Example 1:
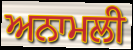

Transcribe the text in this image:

ਅਨਾਮਲੀ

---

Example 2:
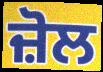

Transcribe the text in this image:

ਜ਼ੋਲ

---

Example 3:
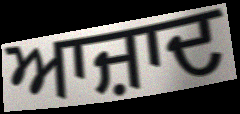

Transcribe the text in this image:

ਆਜ਼ਾਦ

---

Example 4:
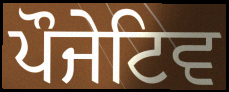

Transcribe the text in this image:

ਪੌਜੇਟਿਵ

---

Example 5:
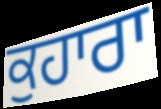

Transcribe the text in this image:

ਕੁਹਾਰਾ